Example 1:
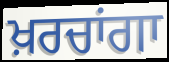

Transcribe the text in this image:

ਖ਼ਰਚਾਂਗਾ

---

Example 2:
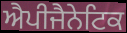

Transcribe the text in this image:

ਐਪੀਜੈਨੇਟਿਕ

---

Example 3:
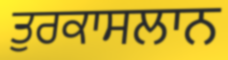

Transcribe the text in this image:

ਤੁਰਕਾਸਲਾਨ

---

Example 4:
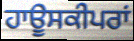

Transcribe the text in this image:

ਹਾਊਸਕੀਪਰਾਂ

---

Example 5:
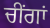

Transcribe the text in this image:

ਚੀਂਗਾਂ